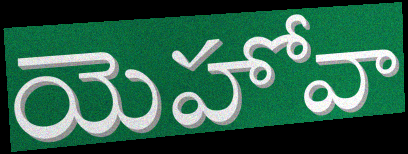
యెహోవా